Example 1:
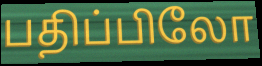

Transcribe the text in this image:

பதிப்பிலோ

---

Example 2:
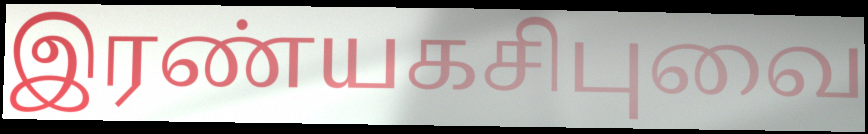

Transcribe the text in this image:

இரண்யகசிபுவை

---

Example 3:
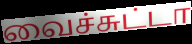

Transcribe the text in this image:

வைச்சுட்டா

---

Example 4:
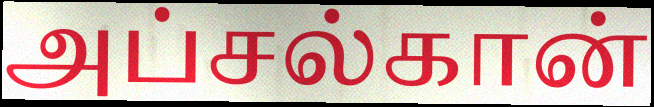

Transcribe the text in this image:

அப்சல்கான்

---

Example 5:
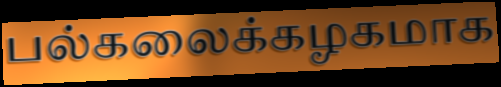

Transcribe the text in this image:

பல்கலைக்கழகமாக